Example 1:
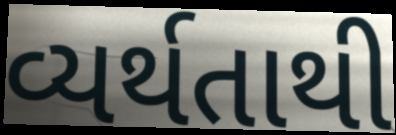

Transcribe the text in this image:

વ્યર્થતાથી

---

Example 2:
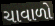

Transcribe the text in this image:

ચાવાળો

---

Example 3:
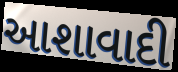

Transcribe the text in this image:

આશાવાદી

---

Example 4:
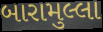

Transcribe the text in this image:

બારામુલ્લા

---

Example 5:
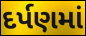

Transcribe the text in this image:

દર્પણમાં